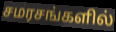
சமரசங்களில்